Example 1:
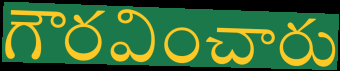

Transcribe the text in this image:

గౌరవించారు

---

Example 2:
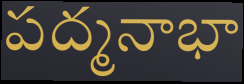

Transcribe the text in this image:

పద్మనాభా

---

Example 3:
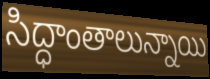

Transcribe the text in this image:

సిద్ధాంతాలున్నాయి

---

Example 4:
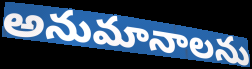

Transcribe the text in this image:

అనుమానాలను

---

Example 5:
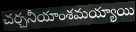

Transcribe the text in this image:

చర్చనీయాంశమయ్యాయి